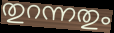
തുറന്നതും